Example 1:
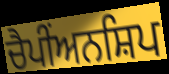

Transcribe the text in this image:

ਚੈਪੀਂਅਨਸ਼ਿਪ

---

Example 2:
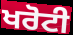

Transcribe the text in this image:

ਖਰੋਟੀ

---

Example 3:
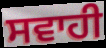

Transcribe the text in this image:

ਸਵਾਹੀ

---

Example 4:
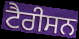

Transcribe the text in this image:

ਟੈਰੀਸਨ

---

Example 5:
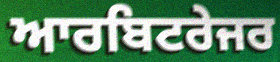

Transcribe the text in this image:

ਆਰਬਿਟਰੇਜਰ